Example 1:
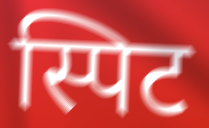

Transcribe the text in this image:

स्पिट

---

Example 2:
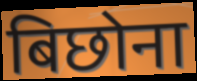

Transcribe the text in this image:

बिछोना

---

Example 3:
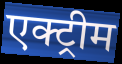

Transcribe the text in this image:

एक्ट्रीम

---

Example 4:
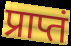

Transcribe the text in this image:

प्राप्तं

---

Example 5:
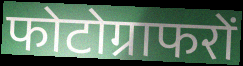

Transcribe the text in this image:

फोटोग्राफरों